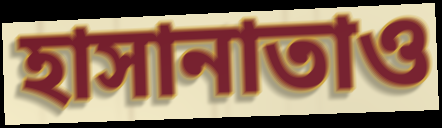
হাসানাতাও